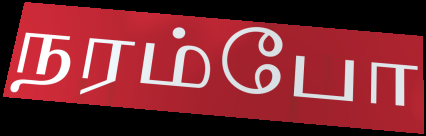
நரம்போ